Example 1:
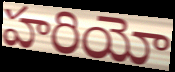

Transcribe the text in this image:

హరియో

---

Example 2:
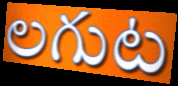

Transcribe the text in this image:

లగుట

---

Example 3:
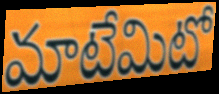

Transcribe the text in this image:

మాటేమిటో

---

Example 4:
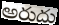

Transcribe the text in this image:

అరుదు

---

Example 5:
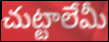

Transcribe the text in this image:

చుట్టాలేమీ